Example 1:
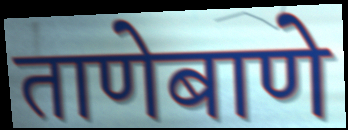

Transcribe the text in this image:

ताणेबाणे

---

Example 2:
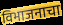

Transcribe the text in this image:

विभाजनाचा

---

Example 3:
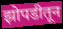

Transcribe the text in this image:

झोपडीतून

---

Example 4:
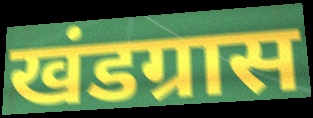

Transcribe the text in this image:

खंडग्रास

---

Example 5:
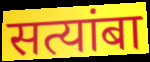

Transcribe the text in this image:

सत्यांबा